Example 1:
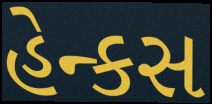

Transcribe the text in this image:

હેન્કસ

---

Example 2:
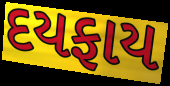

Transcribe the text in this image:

દયફાય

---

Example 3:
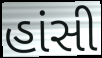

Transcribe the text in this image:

હાંસી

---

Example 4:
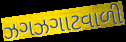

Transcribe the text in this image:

ઝગઝગાટવાળી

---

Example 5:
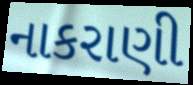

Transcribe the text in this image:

નાકરાણી